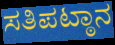
ಸತಿಪಟ್ಠಾನ